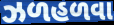
ઝળહળવા